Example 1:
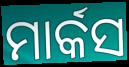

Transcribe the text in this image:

ମାର୍କସ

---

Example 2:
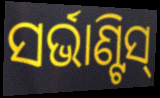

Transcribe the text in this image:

ସର୍ଭାଣ୍ଟିସ୍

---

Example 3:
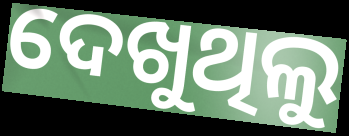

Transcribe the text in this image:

ଦେଖୁଥିଲୁ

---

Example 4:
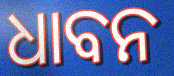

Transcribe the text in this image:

ଧାବନ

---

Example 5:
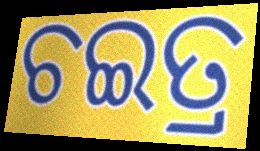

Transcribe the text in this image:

ଚଇତ୍ର